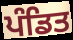
ਪੰਡਿਤ